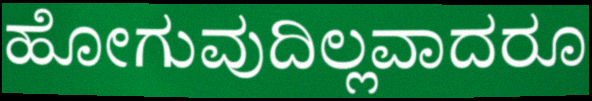
ಹೋಗುವುದಿಲ್ಲವಾದರೂ